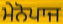
ਮੇਨੋਪਾਜ